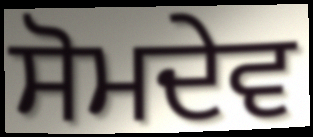
ਸੋਮਦੇਵ